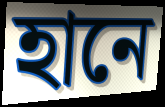
হানে